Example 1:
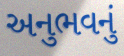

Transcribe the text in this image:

અનુભવનું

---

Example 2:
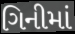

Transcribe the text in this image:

ગિનીમાં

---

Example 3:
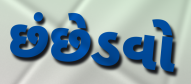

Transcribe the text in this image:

છંછેડવો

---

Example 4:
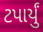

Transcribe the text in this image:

ટપાર્યું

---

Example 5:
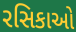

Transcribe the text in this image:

રસિકાઓ